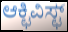
ಆಕ್ಟಿವಿಸ್ಟ್